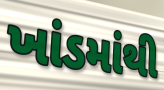
ખાંડમાંથી